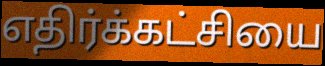
எதிர்க்கட்சியை